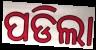
ପଡିଲା